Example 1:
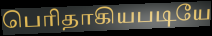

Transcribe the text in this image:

பெரிதாகியபடியே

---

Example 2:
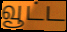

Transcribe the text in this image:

வூட்ட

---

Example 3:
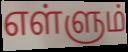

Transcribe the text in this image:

எள்ளும்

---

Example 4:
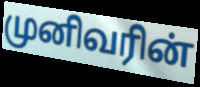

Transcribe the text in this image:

முனிவரின்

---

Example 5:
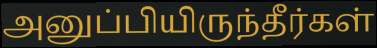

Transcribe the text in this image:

அனுப்பியிருந்தீர்கள்